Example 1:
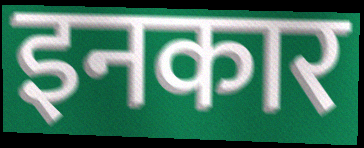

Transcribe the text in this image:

इनकार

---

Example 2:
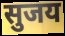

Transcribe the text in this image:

सुजय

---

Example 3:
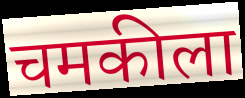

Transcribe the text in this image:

चमकीला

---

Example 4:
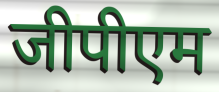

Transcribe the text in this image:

जीपीएम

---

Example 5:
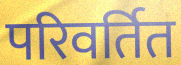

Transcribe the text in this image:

परिवर्तित